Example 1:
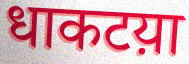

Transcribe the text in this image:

धाकटय़ा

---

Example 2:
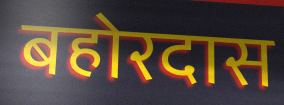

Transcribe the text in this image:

बहोरदास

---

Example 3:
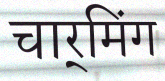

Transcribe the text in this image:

चार्मिंग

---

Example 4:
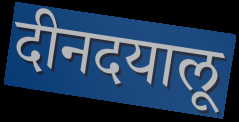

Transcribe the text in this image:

दीनदयालू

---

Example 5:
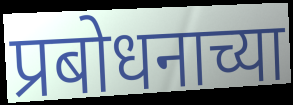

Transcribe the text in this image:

प्रबोधनाच्या